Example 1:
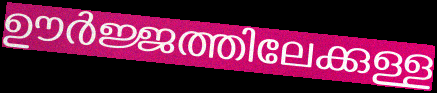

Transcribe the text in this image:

ഊർജ്ജത്തിലേക്കുള്ള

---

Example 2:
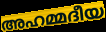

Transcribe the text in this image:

അഹമ്മദീയ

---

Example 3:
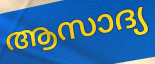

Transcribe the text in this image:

ആസാദ്യ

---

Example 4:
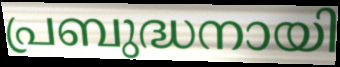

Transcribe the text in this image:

പ്രബുദ്ധനായി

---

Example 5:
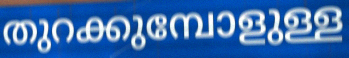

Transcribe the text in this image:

തുറക്കുമ്പോളുള്ള